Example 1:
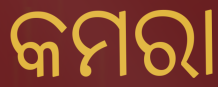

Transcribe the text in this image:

କମରା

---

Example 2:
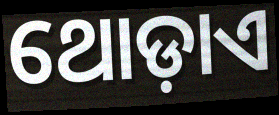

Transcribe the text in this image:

ଥୋଡ଼ାଏ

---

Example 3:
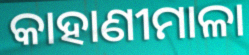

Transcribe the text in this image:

କାହାଣୀମାଳା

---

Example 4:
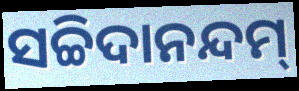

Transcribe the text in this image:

ସଚ୍ଚିଦାନନ୍ଦମ୍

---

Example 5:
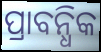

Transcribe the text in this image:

ପ୍ରାବନ୍ଧିକ